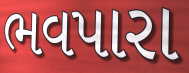
ભવપારા